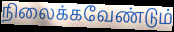
நிலைக்கவேண்டும்